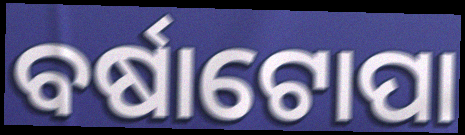
ବର୍ଷାଟୋପା